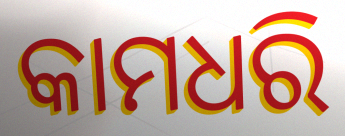
କାମଧରି